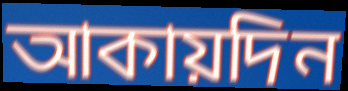
আকায়দিন